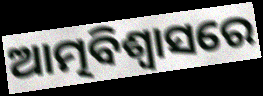
ଆତ୍ମବିଶ୍ଵାସରେ